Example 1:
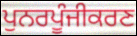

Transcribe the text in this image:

ਪੁਨਰਪੂੰਜੀਕਰਣ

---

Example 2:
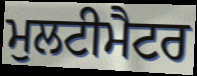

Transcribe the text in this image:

ਮੁਲਟੀਮੈਟਰ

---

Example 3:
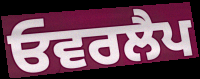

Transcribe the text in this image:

ਓਵਰਲੈਪ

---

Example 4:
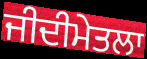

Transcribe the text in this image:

ਜੀਦੀਮੇਤਲਾ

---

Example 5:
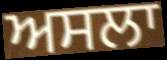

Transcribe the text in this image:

ਅਸਲਾ